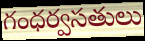
గంధర్వసతులు